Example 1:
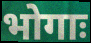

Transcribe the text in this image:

भोगाः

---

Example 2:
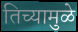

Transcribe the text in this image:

तिच्यामुळे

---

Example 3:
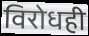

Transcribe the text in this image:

विरोधही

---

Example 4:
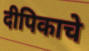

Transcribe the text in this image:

दीपिकाचे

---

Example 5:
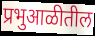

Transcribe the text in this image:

प्रभुआळीतील